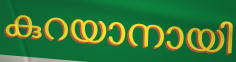
കുറയാനായി